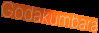
Godakumbara